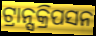
ଟ୍ରାନ୍ସକ୍ରିପସନ